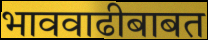
भाववाढीबाबत